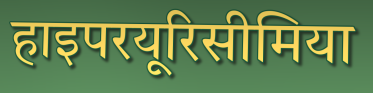
हाइपरयूरिसीमिया